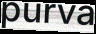
purva